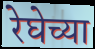
रेघेच्या